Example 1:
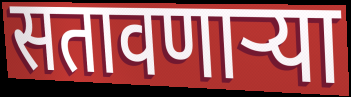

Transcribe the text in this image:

सतावणार्‍या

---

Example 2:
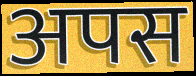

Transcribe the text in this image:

अपस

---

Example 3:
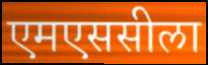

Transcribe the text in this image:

एमएससीला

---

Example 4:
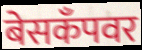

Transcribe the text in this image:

बेसकॅंपवर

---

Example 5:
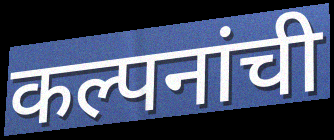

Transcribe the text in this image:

कल्पनांची